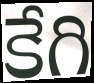
కేగి